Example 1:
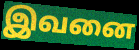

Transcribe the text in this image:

இவனை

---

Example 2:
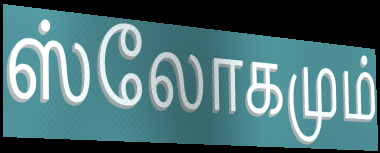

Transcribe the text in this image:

ஸ்லோகமும்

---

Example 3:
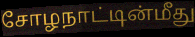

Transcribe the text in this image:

சோழநாட்டின்மீது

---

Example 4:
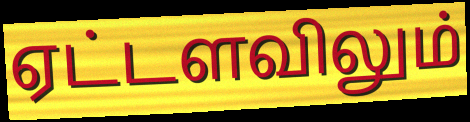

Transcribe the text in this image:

ஏட்டளவிலும்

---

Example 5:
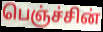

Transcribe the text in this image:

பெஞ்ச்சின்